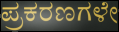
ಪ್ರಕರಣಗಳೇ